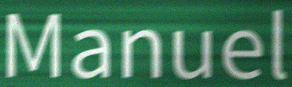
Manuel